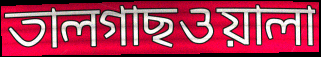
তালগাছওয়ালা